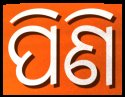
ପିଣି